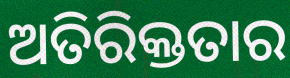
ଅତିରିକ୍ତତାର